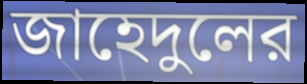
জাহেদুলের